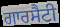
ਗਾਰਸੈਟੀ